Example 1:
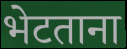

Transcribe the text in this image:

भेटताना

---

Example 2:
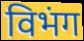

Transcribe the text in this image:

विभंग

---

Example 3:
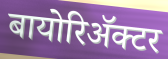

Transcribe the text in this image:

बायोरिॲक्टर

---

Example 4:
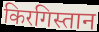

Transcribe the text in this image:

किरगिस्तान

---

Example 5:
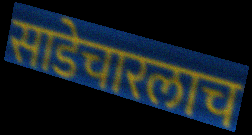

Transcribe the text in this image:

साडेचारलाच